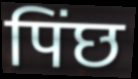
पिंछ